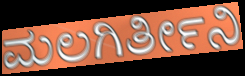
ಮಲಗಿರ್ತೀನಿ